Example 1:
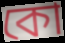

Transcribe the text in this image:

কো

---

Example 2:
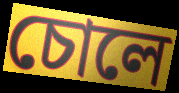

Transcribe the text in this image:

চোলে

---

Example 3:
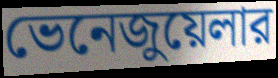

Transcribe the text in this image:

ভেনেজুয়েলার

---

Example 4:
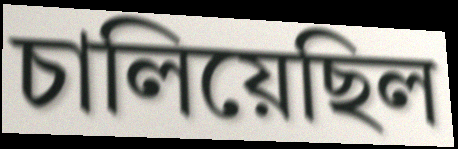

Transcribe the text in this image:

চালিয়েছিল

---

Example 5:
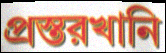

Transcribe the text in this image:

প্রস্তরখানি